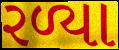
રળ્યા